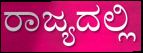
ರಾಜ್ಯದಲ್ಲಿ